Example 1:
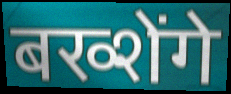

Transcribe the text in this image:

बख्शेंगे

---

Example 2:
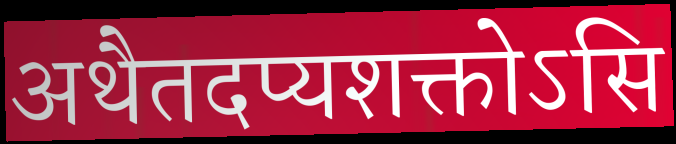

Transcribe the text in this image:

अथैतदप्यशक्तोऽसि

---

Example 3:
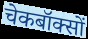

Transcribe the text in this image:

चेकबॉक्सों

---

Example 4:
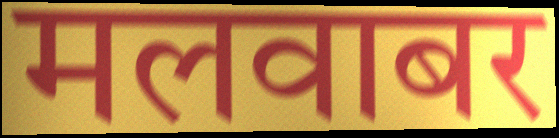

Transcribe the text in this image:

मलवाबर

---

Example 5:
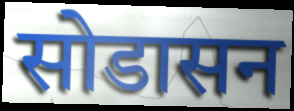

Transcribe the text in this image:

सोडासन